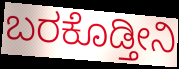
ಬರಕೊಡ್ತೀನಿ